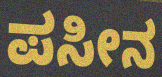
ಪಸೀನ